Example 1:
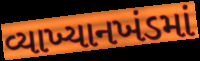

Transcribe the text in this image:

વ્યાખ્યાનખંડમાં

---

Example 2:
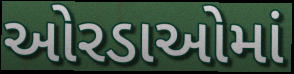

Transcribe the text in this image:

ઓરડાઓમાં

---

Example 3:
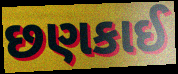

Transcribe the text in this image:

છણકાઈ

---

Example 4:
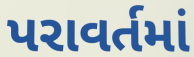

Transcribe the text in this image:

પરાવર્તમાં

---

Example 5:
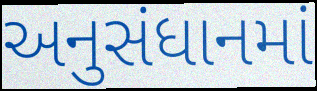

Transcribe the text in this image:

અનુસંધાનમાં